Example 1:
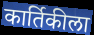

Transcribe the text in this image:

कार्तिकीला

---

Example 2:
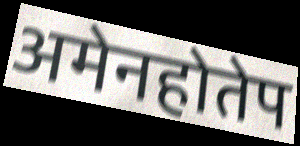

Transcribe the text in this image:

अमेनहोतेप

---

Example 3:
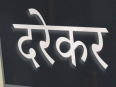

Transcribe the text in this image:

दरेकर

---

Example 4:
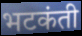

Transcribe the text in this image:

भटकंती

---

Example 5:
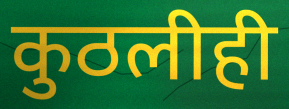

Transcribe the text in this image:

कुठलीही